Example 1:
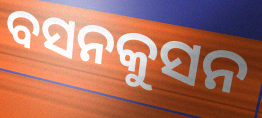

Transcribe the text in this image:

ବସନକୁସନ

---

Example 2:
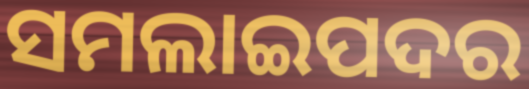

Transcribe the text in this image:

ସମଲାଇପଦର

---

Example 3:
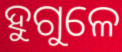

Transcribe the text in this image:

ହୁଗୁଳେ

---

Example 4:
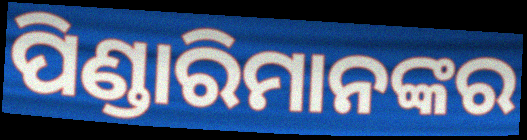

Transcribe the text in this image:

ପିଣ୍ଡାରିମାନଙ୍କର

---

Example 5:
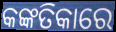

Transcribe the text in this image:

କଙ୍କତିକାରେ